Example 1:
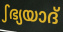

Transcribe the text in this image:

ഽഭ്യയാദ്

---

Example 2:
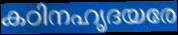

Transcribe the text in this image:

കഠിനഹൃദയരേ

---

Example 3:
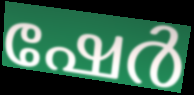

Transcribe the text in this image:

ഷേർ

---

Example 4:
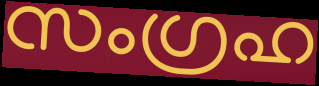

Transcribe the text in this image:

സംഗ്രഹ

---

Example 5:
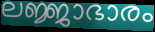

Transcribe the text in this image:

ലജ്ജാഭാരം